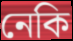
নেকি